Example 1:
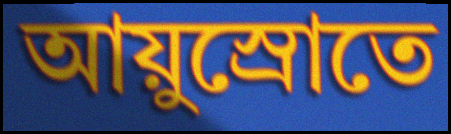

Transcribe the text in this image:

আয়ুস্রোতে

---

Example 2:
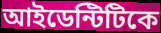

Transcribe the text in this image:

আইডেন্টিটিকে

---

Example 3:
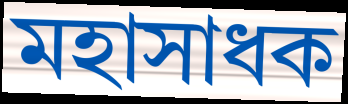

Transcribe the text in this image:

মহাসাধক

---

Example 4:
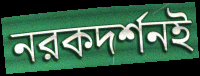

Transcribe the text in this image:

নরকদর্শনই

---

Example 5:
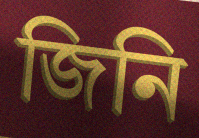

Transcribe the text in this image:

জিনি